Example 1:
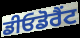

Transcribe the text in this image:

ਡੀਓਡੋਰੈਂਟ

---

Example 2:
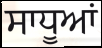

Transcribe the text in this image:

ਸਾਧੂਆਂ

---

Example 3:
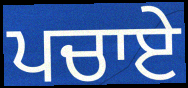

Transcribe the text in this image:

ਪਚਾਏ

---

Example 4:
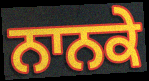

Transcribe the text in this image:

ਨਾਨਕੇ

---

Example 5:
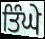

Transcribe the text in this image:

ਤਿੰਘੇ